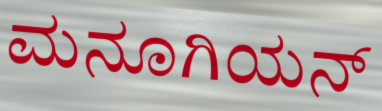
ಮನೂಗಿಯನ್